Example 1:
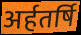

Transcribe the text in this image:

अर्हतर्षि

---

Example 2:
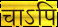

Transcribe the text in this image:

चाऽपि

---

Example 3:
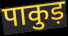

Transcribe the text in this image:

पाकुड़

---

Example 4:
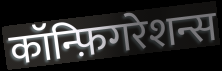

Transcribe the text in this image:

कॉन्फ़िगरेशन्स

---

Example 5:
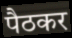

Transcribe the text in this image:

पैठकर